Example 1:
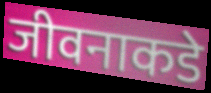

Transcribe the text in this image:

जीवनाकडे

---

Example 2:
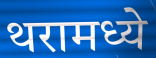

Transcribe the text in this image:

थरामध्ये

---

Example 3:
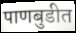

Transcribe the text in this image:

पाणबुडीत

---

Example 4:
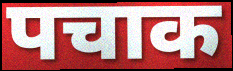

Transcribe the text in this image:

पचाक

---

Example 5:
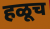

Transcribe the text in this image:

हळूच